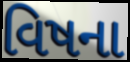
વિષના